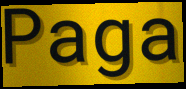
Paga